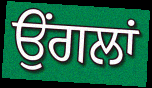
ਉੰਗਲਾਂ